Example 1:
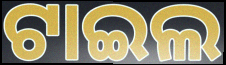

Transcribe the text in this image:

ଟାଇଲ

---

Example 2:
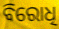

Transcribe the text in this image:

ବିରୋଧି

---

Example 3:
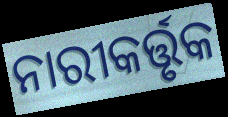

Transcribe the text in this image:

ନାରୀକର୍ତ୍ତୃକ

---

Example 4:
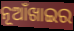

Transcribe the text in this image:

ନୂଆଁଖାଇର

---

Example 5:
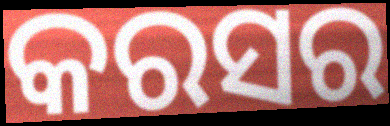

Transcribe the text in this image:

କରସର